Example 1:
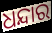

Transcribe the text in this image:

ଧନ୍ଦାର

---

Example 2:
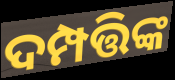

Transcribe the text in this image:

ଦମ୍ପତ୍ତିଙ୍କ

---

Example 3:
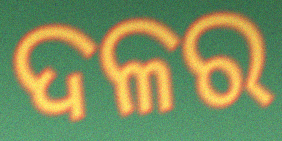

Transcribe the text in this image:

ଦଳର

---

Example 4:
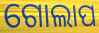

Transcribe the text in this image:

ଗୋଲାପ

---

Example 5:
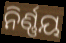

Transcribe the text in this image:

ନିର୍ଣ୍ଣୟ